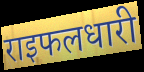
राइफलधारी